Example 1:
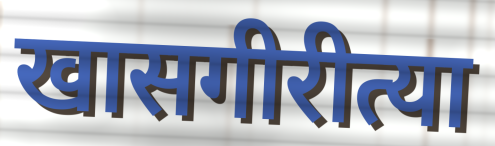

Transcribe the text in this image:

खासगीरीत्या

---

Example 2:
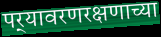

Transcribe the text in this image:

पर्यावरणरक्षणाच्या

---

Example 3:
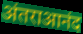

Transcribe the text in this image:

अंतराआनंद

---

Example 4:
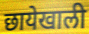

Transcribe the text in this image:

छायेखाली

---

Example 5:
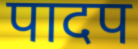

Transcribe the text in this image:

पादप